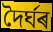
দৈৰ্ঘৰ